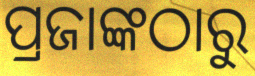
ପ୍ରଜାଙ୍କଠାରୁ